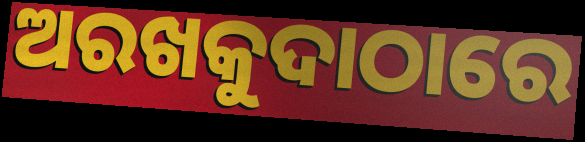
ଅରଖକୁଦାଠାରେ